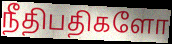
நீதிபதிகளோ